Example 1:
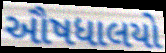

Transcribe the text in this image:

ઔષધાલયો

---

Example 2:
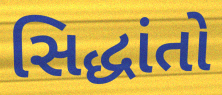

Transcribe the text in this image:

સિદ્ધાંતો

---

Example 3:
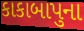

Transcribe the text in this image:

કાકાબાપુના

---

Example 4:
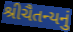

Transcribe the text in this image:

શ્રીચૈતન્યનું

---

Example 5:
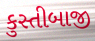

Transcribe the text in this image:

કુસ્તીબાજી